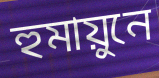
হুমায়ুনে